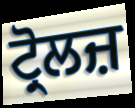
ਟ੍ਰੋਲਜ਼